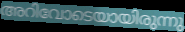
അറിവോടെയായിരുന്നു